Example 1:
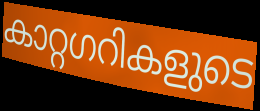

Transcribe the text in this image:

കാറ്റഗറികളുടെ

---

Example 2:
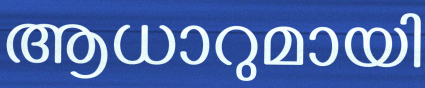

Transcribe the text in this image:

ആധാറുമായി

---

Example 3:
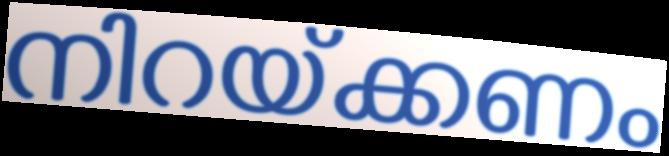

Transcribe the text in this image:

നിറയ്‌ക്കണം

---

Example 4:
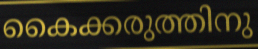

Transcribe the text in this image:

കൈക്കരുത്തിനു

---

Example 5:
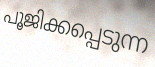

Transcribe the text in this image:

പൂജിക്കപ്പെടുന്ന